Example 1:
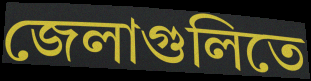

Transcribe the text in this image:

জেলাগুলিতে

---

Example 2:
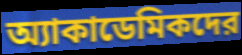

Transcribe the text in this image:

অ্যাকাডেমিকদের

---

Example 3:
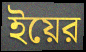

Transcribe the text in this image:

ইয়ের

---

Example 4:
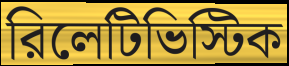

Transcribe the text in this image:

রিলেটিভিস্টিক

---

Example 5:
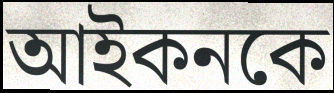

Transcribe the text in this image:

আইকনকে